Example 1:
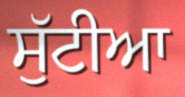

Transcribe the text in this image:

ਸੁੱਟੀਆ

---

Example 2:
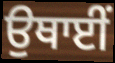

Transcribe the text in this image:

ਉਥਾਈਂ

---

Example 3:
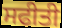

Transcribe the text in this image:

ਸਫੀਤੀ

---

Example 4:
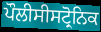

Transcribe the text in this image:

ਪੌਲੀਸੀਸਟ੍ਰੋਨਿਕ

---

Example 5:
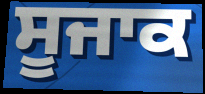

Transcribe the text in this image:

ਸੂਜਾਕ